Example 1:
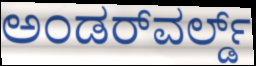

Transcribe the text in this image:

ಅಂಡರ್‌ವರ್ಲ್ಡ್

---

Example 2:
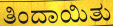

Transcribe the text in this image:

ತಿಂದಾಯಿತು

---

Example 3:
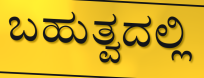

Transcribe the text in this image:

ಬಹುತ್ವದಲ್ಲಿ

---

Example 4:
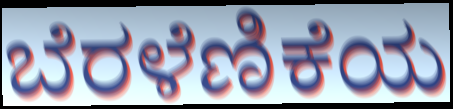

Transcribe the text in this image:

ಬೆರಳೆಣಿಕೆಯ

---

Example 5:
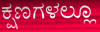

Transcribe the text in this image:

ಕ್ಷಣಗಳಲ್ಲೂ